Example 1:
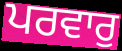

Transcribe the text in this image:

ਪਰਵਾਰੁ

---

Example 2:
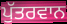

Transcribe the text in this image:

ਪੁੱਤਰਵਾਨ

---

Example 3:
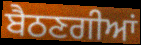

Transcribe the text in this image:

ਬੈਠਣਗੀਆਂ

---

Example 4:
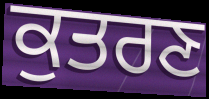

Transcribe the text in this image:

ਕੁਤਰਣ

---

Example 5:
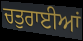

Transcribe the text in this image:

ਚਤੁਰਾਈਆਂ